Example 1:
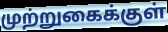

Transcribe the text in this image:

முற்றுகைக்குள்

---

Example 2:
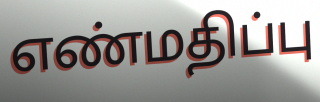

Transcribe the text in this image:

எண்மதிப்பு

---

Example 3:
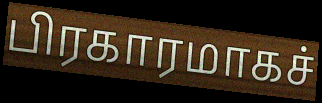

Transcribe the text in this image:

பிரகாரமாகச்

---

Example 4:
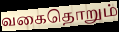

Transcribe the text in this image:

வகைதொறும்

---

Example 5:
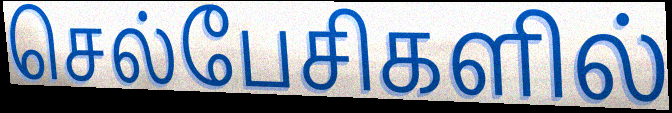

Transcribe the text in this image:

செல்பேசிகளில்